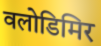
वलोडिमिर